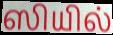
ஸியில்